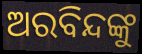
ଅରବିନ୍ଦଙ୍କୁ